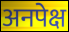
अनपेक्ष